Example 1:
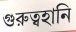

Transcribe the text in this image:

গুরুত্বহানি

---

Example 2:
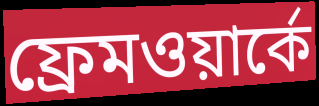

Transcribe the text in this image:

ফ্রেমওয়ার্কে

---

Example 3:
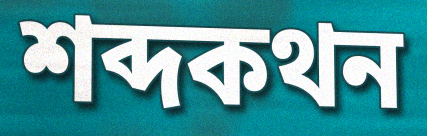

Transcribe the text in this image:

শব্দকথন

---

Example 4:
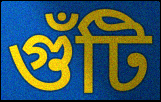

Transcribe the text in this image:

গুঁটি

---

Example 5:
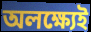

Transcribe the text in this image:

অলক্ষ্যেই